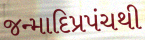
જન્માદિપ્રપંચથી